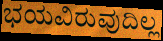
ಭಯವಿರುವುದಿಲ್ಲ